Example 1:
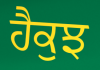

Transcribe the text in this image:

ਹੈਕੁਝ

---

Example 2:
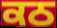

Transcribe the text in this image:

ਕਠ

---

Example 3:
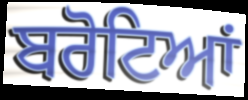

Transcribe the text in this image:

ਬਰੋਟਿਆਂ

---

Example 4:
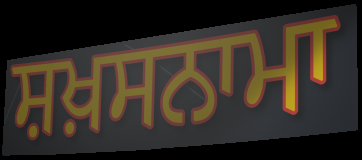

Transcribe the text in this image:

ਸ਼ਖ਼ਸਨਾਮਾ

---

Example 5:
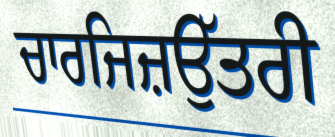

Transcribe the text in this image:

ਚਾਰਜਿਜ਼ਉੱਤਰੀ